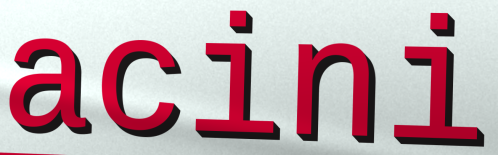
acini